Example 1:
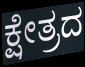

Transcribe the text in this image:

ಕ್ಷೇತ್ರದ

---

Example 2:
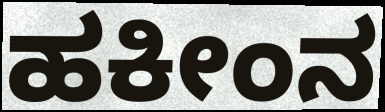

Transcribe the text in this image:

ಹಕೀಂನ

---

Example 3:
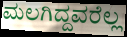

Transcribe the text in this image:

ಮಲಗಿದ್ದವರೆಲ್ಲ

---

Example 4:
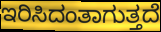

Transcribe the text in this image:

ಇರಿಸಿದಂತಾಗುತ್ತದೆ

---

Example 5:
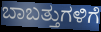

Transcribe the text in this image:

ಬಾಬತ್ತುಗಳಿಗೆ